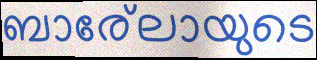
ബാര്ലോയുടെ